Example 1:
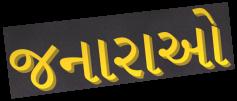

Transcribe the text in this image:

જનારાઓ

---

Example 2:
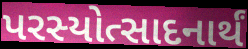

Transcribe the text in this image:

પરસ્યોત્સાદનાર્થં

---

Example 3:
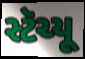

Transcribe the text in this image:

સ્ટૅચ્યૂ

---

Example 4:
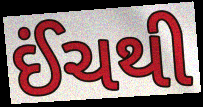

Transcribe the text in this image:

ઈંચથી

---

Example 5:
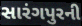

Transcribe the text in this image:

સારંગપુરની